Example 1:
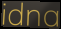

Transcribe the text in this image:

idna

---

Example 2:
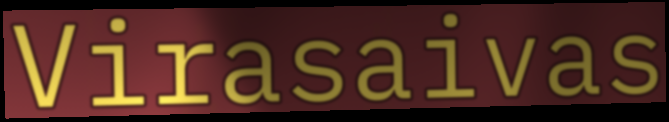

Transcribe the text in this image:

Virasaivas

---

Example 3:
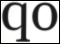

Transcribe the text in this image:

qo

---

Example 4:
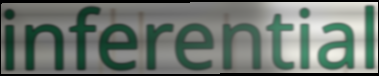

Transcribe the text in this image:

inferential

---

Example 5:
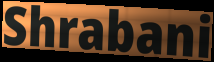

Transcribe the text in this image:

Shrabani